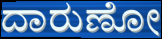
ದಾರುಣೋ